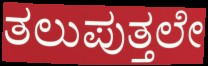
ತಲುಪುತ್ತಲೇ